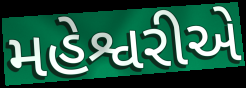
મહેશ્વરીએ